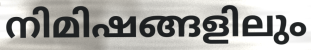
നിമിഷങ്ങളിലും